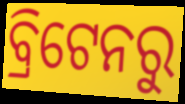
ବ୍ରିଟେନରୁ